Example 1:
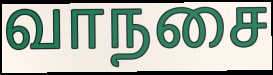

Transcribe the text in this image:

வாநசை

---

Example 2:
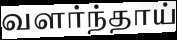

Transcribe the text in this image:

வளர்ந்தாய்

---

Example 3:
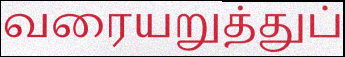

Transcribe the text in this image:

வரையறுத்துப்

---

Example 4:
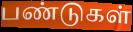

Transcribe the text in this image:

பண்டுகள்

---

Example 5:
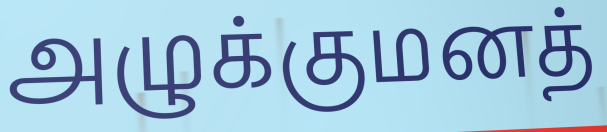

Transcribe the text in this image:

அழுக்குமனத்